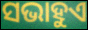
ସଭାହୁଏ